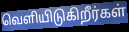
வெளியிடுகிறீர்கள்